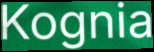
Kognia